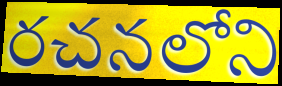
రచనలోని